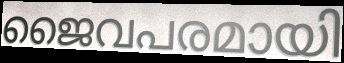
ജൈവപരമായി